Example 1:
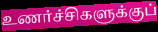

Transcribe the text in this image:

உணர்ச்சிகளுக்குப்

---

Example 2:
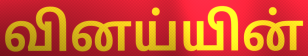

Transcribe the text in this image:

வினய்யின்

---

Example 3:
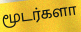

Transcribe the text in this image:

மூடர்களா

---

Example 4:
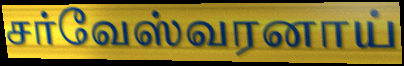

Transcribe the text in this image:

சர்வேஸ்வரனாய்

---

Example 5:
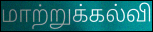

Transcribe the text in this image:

மாற்றுக்கல்வி